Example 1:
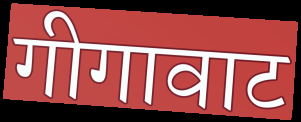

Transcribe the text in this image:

गीगावाट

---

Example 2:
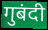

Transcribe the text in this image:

गुबंदी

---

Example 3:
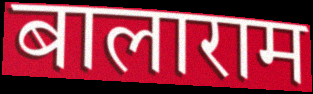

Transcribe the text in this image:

बालाराम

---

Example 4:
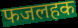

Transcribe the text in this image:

फजलहक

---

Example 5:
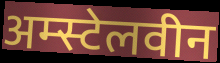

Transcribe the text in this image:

अम्स्टेलवीन